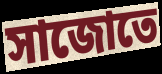
সাজোতে